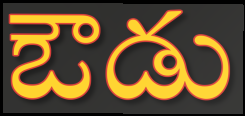
ఔడు